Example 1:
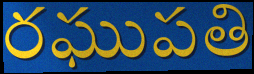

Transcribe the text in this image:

రఘుపతి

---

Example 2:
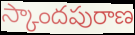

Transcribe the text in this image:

స్కాందపురాణ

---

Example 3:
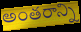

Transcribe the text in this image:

అంతరాన్ని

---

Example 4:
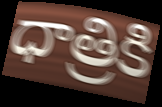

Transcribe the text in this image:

ధాత్రికి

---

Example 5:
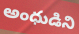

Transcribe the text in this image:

అంధుడిని